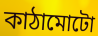
কাঠামোটো